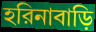
হরিনাবাড়ি